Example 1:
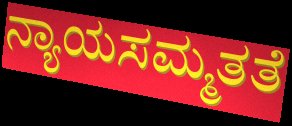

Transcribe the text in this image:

ನ್ಯಾಯಸಮ್ಮತತೆ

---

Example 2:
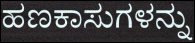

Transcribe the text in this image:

ಹಣಕಾಸುಗಳನ್ನು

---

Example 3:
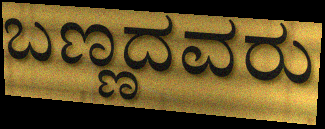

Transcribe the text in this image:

ಬಣ್ಣದವರು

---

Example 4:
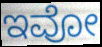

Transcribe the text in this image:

ಇವೋ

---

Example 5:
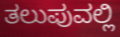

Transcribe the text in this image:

ತಲುಪುವಲ್ಲಿ